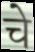
चे